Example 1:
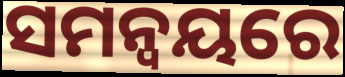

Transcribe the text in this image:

ସମନ୍ବୟରେ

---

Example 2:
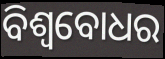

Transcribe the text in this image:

ବିଶ୍ବବୋଧର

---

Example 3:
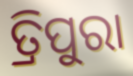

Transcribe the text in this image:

ତ୍ରିପୁରା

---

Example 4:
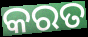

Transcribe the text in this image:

କରତ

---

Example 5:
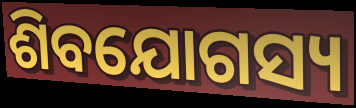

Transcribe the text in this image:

ଶିବଯୋଗସ୍ୟ